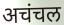
अचंचल